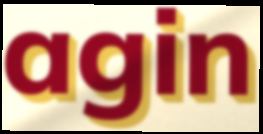
agin